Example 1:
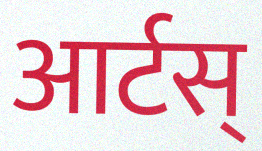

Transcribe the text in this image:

आर्टस्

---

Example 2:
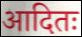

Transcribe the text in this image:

आदितः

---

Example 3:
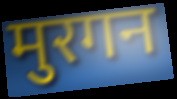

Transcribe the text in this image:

मुरगन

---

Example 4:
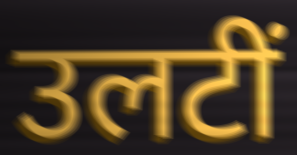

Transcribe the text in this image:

उलटीं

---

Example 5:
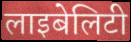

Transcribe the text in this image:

लाइबेलिटी